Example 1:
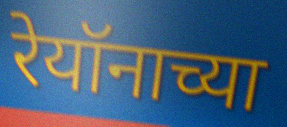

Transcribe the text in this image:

रेयॉनाच्या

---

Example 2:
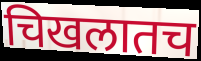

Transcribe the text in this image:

चिखलातच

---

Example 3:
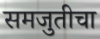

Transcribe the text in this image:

समजुतीचा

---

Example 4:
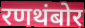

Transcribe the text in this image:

रणथंबोर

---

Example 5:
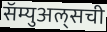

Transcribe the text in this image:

सॅम्युअल्सची